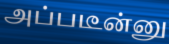
அப்படீன்னு